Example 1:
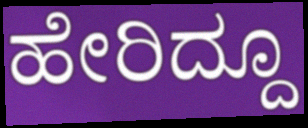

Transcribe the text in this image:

ಹೇರಿದ್ದೂ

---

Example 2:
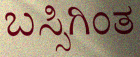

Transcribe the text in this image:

ಬಸ್ಸಿಗಿಂತ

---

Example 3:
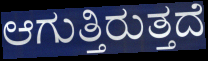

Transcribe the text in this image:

ಆಗುತ್ತಿರುತ್ತದೆ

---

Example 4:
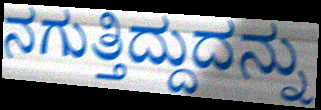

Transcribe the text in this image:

ನಗುತ್ತಿದ್ದುದನ್ನು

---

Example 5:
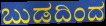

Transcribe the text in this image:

ಬುಡದಿಂದ